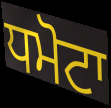
ਧਮੋਟਾ